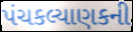
પંચકલ્યાણકની